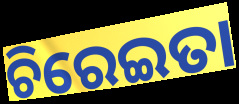
ଚିରେଇତା